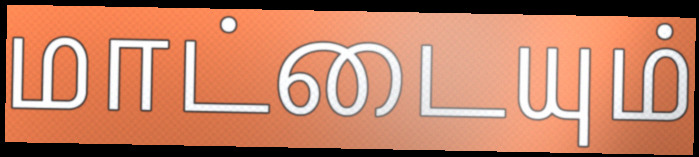
மாட்டையும்